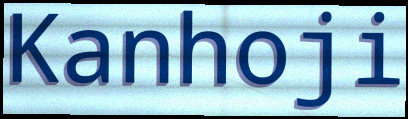
Kanhoji